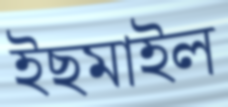
ইছমাইল